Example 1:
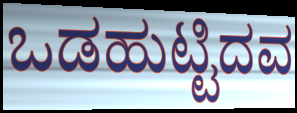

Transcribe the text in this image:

ಒಡಹುಟ್ಟಿದವ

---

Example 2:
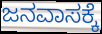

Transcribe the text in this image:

ಜನವಾಸಕ್ಕೆ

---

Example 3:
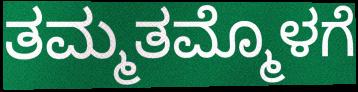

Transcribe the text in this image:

ತಮ್ಮತಮ್ಮೊಳಗೆ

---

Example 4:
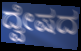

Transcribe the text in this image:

ದ್ವೇಷದ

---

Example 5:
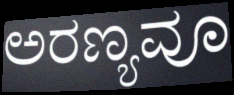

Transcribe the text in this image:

ಅರಣ್ಯವೂ